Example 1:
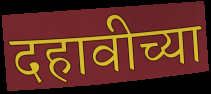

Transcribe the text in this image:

दहावीच्या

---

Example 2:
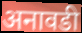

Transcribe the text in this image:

अनावडी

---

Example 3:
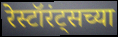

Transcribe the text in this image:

रेस्टॉरंट्सच्या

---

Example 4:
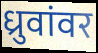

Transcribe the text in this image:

ध्रुवांवर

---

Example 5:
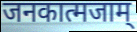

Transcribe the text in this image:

जनकात्मजाम्